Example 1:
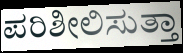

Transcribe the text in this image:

ಪರಿಶೀಲಿಸುತ್ತಾ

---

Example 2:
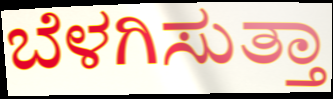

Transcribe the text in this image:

ಬೆಳಗಿಸುತ್ತಾ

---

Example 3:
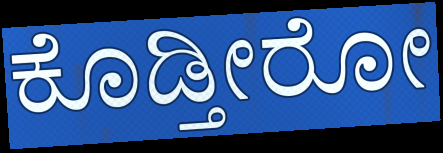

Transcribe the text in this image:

ಕೊಡ್ತೀರೋ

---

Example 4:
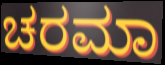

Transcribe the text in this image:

ಚರಮಾ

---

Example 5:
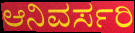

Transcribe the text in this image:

ಆನಿವರ್ಸರಿ